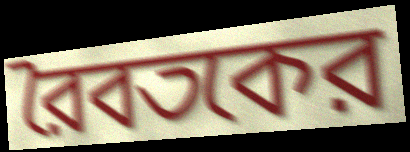
রৈবতকের